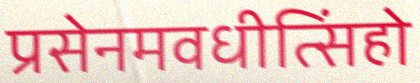
प्रसेनमवधीत्सिंहो